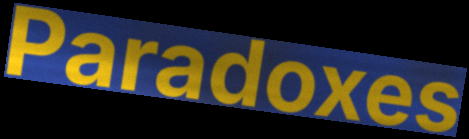
Paradoxes